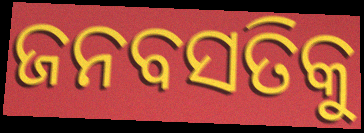
ଜନବସତିକୁ